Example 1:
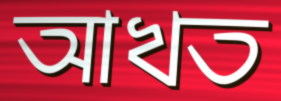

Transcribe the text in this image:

আখত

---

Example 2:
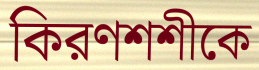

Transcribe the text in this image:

কিরণশশীকে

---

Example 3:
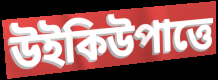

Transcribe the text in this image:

উইকিউপাত্তে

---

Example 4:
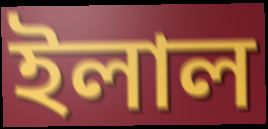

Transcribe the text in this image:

ইলাল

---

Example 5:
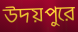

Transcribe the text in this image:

উদয়পুরে